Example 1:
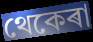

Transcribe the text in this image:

থেকেৰা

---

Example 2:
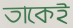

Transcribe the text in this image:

তাকেই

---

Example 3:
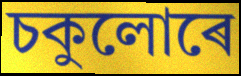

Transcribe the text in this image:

চকুলোৰে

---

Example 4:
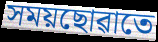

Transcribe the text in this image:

সময়ছোৱাতে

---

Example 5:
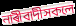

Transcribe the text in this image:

নাৰীবাদীসকলে